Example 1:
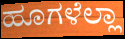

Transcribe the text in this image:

ಹೂಗಳೆಲ್ಲಾ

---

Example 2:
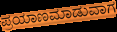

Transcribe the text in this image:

ಪ್ರಯಾಣಮಾಡುವಾಗ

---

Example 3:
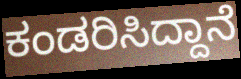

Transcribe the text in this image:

ಕಂಡರಿಸಿದ್ದಾನೆ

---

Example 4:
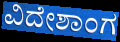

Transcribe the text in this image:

ವಿದೇಶಾಂಗ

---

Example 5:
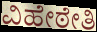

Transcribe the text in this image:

ವಿಹೇಠೇತಿ